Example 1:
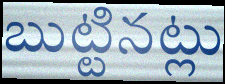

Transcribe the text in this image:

బుట్టినట్లు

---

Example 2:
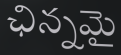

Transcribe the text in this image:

ఛిన్నమై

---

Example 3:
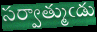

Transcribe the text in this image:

సర్వాత్ముఁడు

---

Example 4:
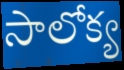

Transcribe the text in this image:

సాలోక్య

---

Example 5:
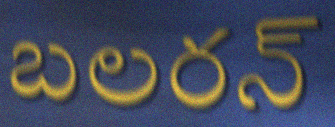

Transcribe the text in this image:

బలరన్